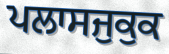
ਪਲਾਸਜੁਕੁਕ